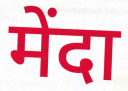
मेंदा